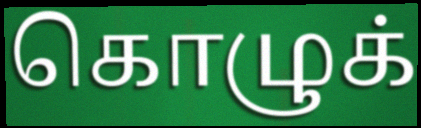
கொழுக்